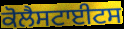
ਕੋਲੈਸਟਾਈਟਸ